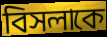
বিসলাকে